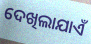
ଦେଖିଲାଯାଏଁ